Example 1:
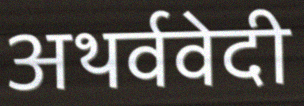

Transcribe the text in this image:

अथर्ववेदी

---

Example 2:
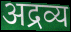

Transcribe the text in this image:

अद्रव्य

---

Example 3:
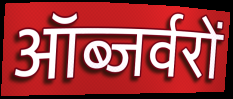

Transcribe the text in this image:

ऑब्जर्वरों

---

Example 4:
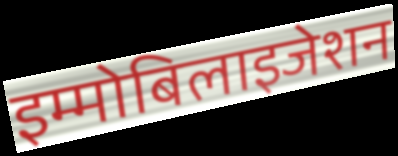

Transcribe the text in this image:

इम्मोबिलाइजेशन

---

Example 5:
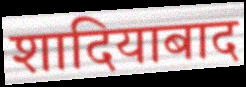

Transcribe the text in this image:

शादियाबाद